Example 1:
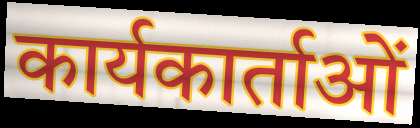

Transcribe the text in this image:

कार्यकार्ताओं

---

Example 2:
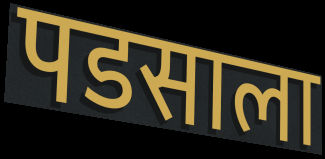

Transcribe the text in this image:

पडसाला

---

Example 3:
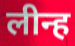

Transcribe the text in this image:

लीन्ह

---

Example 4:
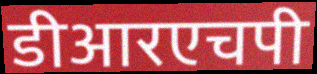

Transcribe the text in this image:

डीआरएचपी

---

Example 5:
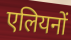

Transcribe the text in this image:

एलियनों